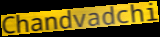
Chandvadchi